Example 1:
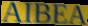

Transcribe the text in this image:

AIBEA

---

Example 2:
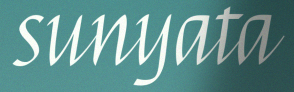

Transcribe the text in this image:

sunyata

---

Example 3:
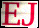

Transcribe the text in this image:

EJ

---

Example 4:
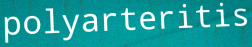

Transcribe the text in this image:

polyarteritis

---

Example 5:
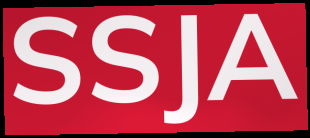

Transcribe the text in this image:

SSJA